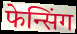
फेन्सिंग